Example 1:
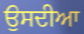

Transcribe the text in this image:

ਉਸਦੀਆ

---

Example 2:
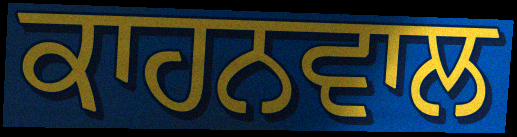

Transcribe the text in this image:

ਕਾਹਨਵਾਲ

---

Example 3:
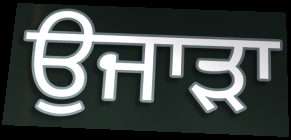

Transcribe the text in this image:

ਉਜਾੜਾ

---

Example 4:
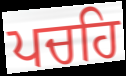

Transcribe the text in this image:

ਪਚਹਿ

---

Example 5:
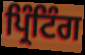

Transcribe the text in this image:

ਪ੍ਰਿੰਟਿੰਗ